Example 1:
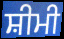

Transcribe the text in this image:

ਸ਼ੀਮੀ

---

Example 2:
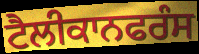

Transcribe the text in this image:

ਟੈਲੀਕਾਨਫਰੰਸ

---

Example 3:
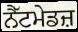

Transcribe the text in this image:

ਨੈੱਟਮੇਡਜ਼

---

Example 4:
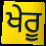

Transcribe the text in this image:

ਖੇਰੂ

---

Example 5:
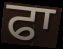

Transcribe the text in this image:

ਫਾ